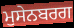
ਮੁਸੇਨਬਰਗ